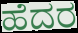
ಹೆದರ